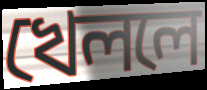
খেললে